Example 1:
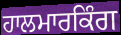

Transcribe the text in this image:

ਹਾਲਮਾਰਕਿੰਗ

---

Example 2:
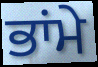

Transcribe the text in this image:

ਭਾਂਮੇ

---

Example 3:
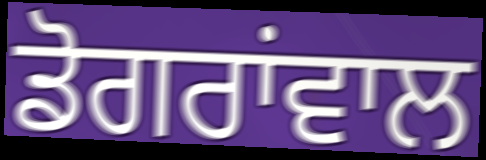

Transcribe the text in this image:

ਡੋਗਰਾਂਵਾਲ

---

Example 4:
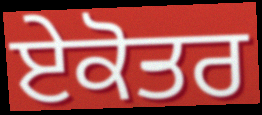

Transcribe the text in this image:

ਏਕੋਤਰ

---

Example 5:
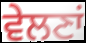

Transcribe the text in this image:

ਵੇਲਣਾਂ